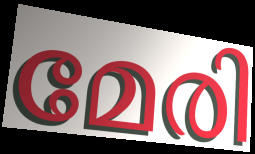
മേരി